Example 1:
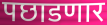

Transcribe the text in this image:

पछाडणार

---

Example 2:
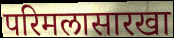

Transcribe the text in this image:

परिमलासारखा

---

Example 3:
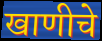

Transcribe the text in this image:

खाणीचे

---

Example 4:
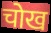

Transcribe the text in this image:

चोख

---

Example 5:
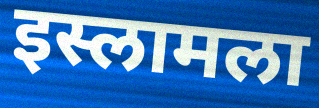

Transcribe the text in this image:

इस्लामला